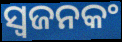
ସ୍ଵଜନକଂ